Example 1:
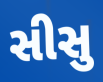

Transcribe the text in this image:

સીસુ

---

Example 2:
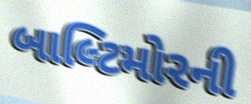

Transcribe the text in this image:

બાલ્ટિમોરની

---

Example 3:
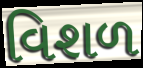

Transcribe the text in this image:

વિશળ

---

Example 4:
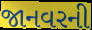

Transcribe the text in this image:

જાનવરની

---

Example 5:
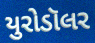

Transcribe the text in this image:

યુરોડૉલર